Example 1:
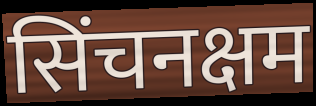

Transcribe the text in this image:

सिंचनक्षम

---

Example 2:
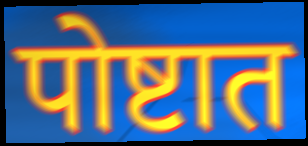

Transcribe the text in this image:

पोष्टात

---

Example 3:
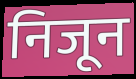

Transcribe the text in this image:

निजून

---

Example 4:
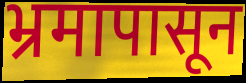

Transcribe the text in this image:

भ्रमापासून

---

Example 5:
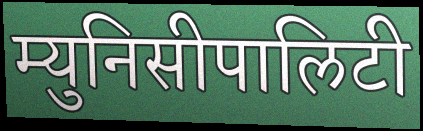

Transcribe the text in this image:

म्युनिसीपालिटी